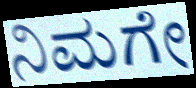
ನಿಮಗೇ